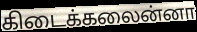
கிடைக்கலைன்னா